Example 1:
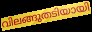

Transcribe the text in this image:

വിലങ്ങുതടിയായി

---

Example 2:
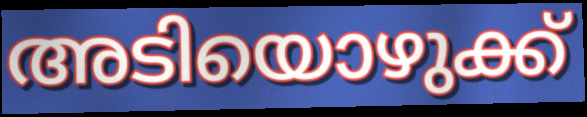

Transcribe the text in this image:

അടിയൊഴുക്ക്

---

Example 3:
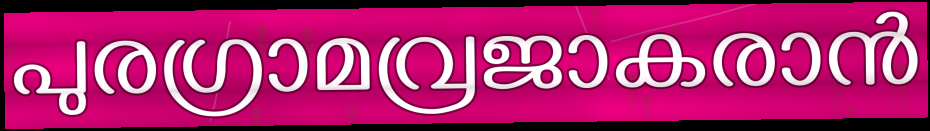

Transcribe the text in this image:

പുരഗ്രാമവ്രജാകരാൻ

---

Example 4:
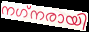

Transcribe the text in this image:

നഗ്‌നരായി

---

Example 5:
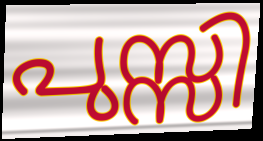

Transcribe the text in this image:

പുസ്സി